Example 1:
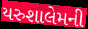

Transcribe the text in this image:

યરુશાલેમની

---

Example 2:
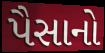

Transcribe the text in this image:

પૈસાનો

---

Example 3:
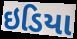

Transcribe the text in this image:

ઇડિયા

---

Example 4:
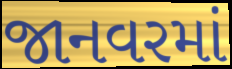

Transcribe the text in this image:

જાનવરમાં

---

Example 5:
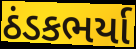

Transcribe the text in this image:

ઠંડકભર્યા